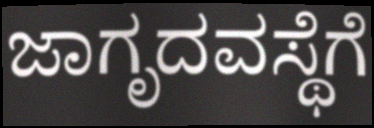
ಜಾಗೃದವಸ್ಥೆಗೆ